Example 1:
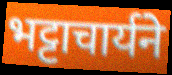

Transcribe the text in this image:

भट्टाचार्यने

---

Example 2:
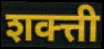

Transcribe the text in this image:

शक्त्ती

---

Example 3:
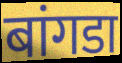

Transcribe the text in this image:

बांगडा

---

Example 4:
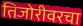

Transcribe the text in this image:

तिजोरीवरचा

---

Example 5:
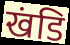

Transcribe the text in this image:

खंडि